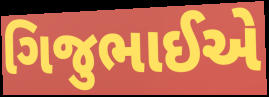
ગિજુભાઈએ